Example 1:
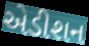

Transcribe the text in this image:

એડીશન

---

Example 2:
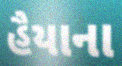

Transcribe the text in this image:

હૈયાના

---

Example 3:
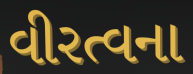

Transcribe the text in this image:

વીરત્વના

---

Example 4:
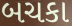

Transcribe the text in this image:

બચકા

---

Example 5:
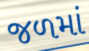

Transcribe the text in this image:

જળમાં